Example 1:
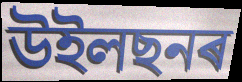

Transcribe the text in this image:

উইলছনৰ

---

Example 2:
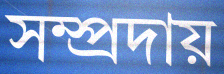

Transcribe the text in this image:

সম্প্ৰদায়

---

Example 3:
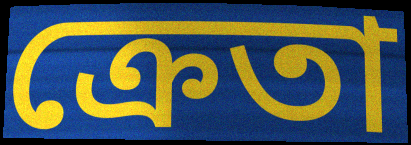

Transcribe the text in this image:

ক্ৰেতা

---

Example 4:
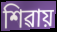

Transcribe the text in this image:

শিৱায়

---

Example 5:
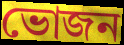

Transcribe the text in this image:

ভোজন